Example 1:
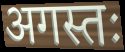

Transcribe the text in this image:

अगस्तः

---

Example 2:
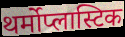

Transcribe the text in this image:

थर्मोप्लास्टिक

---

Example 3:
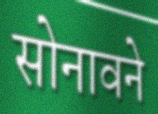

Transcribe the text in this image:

सोनावने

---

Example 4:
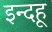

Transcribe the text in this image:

इन्दहू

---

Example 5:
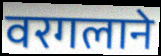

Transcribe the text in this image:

वरगलाने